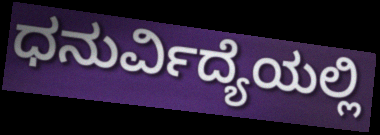
ಧನುರ್ವಿದ್ಯೆಯಲ್ಲಿ